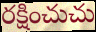
రక్షించుచు